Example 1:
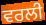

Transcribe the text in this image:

ਵਰਲੀ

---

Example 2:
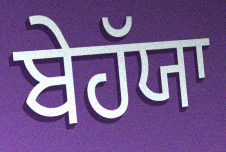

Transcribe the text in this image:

ਬੇਹੱਯਾ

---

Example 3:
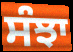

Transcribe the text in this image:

ਸੰਝਾ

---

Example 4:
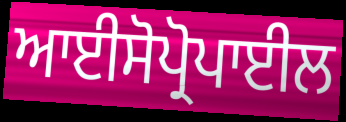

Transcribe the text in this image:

ਆਈਸੋਪ੍ਰੋਪਾਈਲ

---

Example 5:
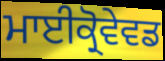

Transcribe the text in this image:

ਮਾਈਕ੍ਰੋਵੇਵਡ